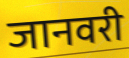
जानवरी